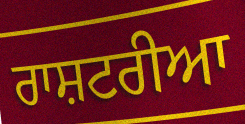
ਰਾਸ਼ਟਰੀਆ